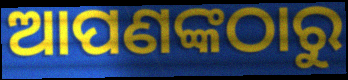
ଆପଣଙ୍କଠାରୁ